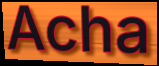
Acha